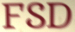
FSD